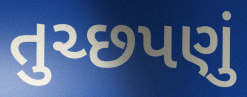
તુચ્છપણું